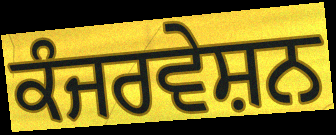
ਕੰਜਰਵੇਸ਼ਨ